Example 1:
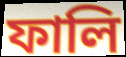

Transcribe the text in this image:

ফালি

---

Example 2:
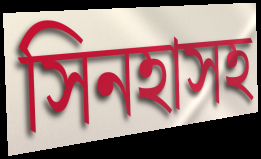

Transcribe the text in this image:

সিনহাসহ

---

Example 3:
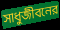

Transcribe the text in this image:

সাধুজীবনের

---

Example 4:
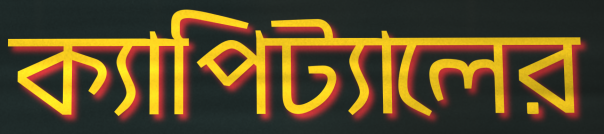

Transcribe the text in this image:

ক্যাপিট্যালের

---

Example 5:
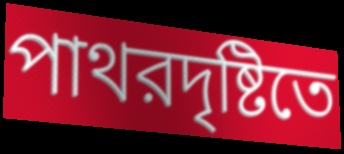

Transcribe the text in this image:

পাথরদৃষ্টিতে